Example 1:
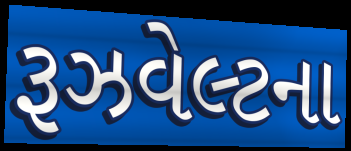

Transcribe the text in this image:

રૂઝવેલ્ટના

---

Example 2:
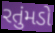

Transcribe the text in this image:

રતુંમડો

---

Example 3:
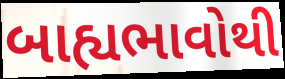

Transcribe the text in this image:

બાહ્યભાવોથી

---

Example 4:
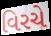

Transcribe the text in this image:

વિરચે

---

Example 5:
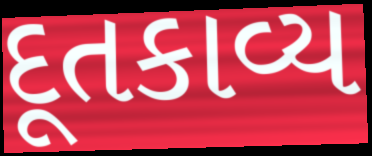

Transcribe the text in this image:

દૂતકાવ્ય